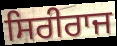
ਸਿਰੀਰਾਜ